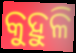
କୁହୁଳି